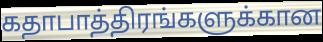
கதாபாத்திரங்களுக்கான